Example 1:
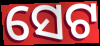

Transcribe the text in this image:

ସେଟ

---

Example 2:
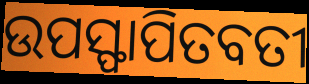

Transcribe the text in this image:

ଉପସ୍ଫାପିତବତୀ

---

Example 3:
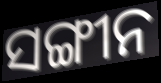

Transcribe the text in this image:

ସଙ୍ଗୀନ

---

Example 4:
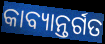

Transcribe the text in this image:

କାବ୍ଯାନ୍ତର୍ଗତ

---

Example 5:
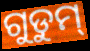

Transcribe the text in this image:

ଗୁଡୁମ୍